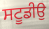
ਸਟੂਡੀਉ